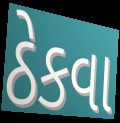
ઠેકવા